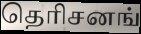
தெரிசனங்